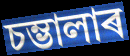
চম্ভালাৰ